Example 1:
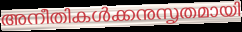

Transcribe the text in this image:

അനീതികൾക്കനുസൃതമായി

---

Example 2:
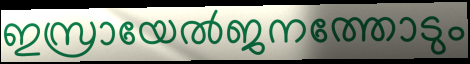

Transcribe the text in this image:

ഇസ്രായേൽജനത്തോടും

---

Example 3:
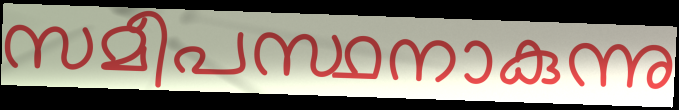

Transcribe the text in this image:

സമീപസ്ഥനാകുന്നു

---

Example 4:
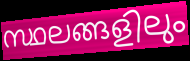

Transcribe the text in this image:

സ്ഥലങ്ങളിലും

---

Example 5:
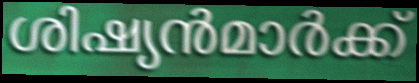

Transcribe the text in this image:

ശിഷ്യൻമാർക്ക്